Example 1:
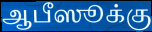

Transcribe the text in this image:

ஆபீஸூக்கு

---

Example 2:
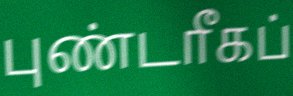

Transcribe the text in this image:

புண்டரீகப்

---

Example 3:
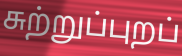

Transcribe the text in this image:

சுற்றுப்புறப்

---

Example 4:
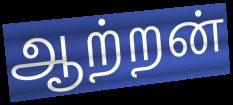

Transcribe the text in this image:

ஆற்றன்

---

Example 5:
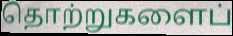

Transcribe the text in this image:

தொற்றுகளைப்